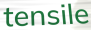
tensile